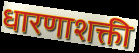
धारणाशक्ती